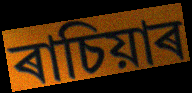
ৰাচিয়াৰ